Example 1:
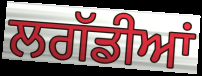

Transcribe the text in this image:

ਲਗੱਡੀਆਂ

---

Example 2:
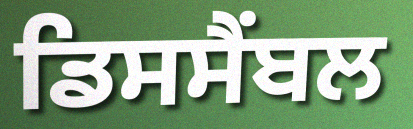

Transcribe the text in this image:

ਡਿਸਸੈਂਬਲ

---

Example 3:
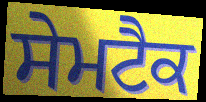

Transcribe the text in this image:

ਸੇਮਟੈਕ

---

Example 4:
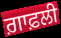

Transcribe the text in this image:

ਗ਼ਾਫ਼ਲੀ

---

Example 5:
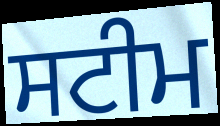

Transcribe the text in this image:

ਸਟੀਮ